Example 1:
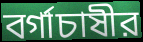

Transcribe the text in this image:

বর্গাচাষীর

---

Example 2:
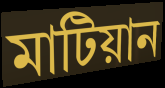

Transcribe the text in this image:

মাটিয়ান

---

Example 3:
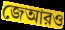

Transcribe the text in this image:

জেআরও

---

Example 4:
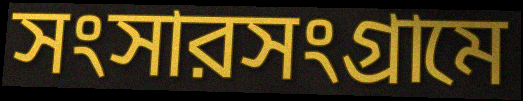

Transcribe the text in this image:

সংসারসংগ্রামে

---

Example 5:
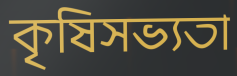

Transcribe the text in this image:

কৃষিসভ্যতা